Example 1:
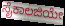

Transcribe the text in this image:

ಸೈಕಾಲಜಿಯೇ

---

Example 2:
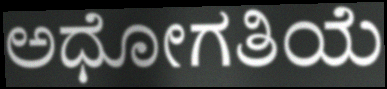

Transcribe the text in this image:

ಅಧೋಗತಿಯೆ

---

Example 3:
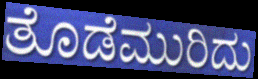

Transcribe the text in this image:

ತೊಡೆಮುರಿದು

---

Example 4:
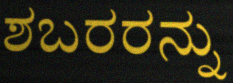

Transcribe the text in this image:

ಶಬರರನ್ನು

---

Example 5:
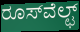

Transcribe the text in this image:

ರೂಸ್‌ವೆಲ್ಟ್